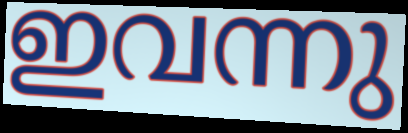
ഇവന്നു